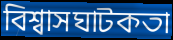
বিশ্বাসঘাটকতা